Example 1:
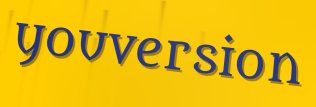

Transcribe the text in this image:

youversion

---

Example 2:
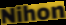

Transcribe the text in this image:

Nihon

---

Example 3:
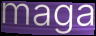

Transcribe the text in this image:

maga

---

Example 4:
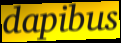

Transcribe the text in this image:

dapibus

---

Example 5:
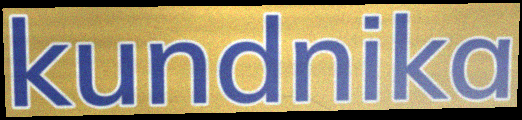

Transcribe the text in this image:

kundnika